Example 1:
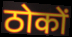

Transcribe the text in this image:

ठोकों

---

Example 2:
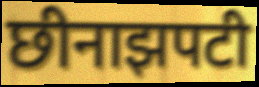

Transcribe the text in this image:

छीनाझपटी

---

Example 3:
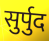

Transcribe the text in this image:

सुर्पुद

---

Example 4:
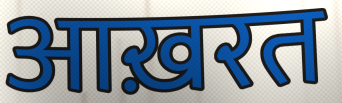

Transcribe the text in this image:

आख़रत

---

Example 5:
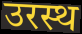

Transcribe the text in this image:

उरस्थ